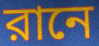
রানে